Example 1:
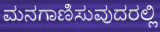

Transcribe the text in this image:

ಮನಗಾಣಿಸುವುದರಲ್ಲಿ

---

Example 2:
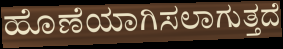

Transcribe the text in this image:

ಹೊಣೆಯಾಗಿಸಲಾಗುತ್ತದೆ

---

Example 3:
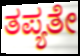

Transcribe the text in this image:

ತಪ್ಯತೇ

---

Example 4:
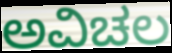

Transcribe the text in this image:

ಅವಿಚಲ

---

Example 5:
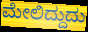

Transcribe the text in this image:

ಮೇಲಿದ್ದುದು